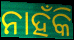
ନାହଁକି